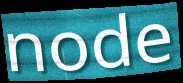
node